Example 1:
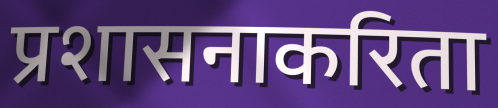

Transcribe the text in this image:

प्रशासनाकरिता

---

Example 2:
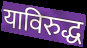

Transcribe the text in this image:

याविरुद्ध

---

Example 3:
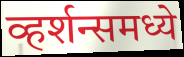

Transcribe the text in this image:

व्हर्शन्समध्ये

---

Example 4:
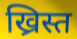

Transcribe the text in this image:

ख्रिस्त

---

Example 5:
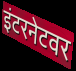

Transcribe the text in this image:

इंटरनेटवर